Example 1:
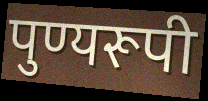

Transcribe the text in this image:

पुण्यरूपी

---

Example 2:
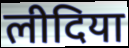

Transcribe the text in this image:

लीदिया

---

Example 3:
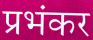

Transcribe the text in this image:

प्रभंकर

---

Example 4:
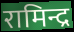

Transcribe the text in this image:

रामिन्द्र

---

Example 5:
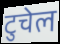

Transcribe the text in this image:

टुचेल